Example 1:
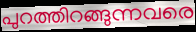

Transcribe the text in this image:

പുറത്തിറങ്ങുന്നവരെ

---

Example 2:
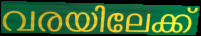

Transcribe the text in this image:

വരയിലേക്ക്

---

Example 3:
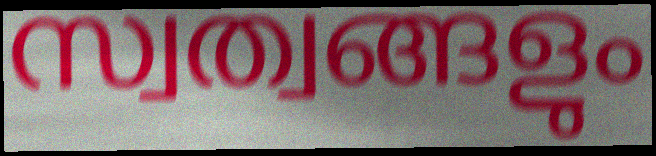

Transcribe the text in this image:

സ്വത്വങ്ങളും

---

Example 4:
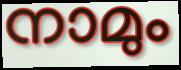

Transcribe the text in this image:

നാമും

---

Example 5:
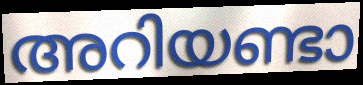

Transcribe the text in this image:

അറിയണ്ടാ